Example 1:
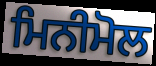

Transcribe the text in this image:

ਮਿਨੀਮੋਲ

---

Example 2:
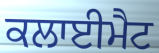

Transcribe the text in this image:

ਕਲਾਈਮੈਟ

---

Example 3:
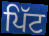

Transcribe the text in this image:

ਪਿੱਟ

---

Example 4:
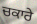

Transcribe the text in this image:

ਚਕਾਰੇ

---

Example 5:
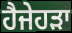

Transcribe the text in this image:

ਹੈਜੇਹੜਾ